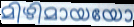
മിഴിമായയോ